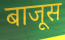
बाजूस